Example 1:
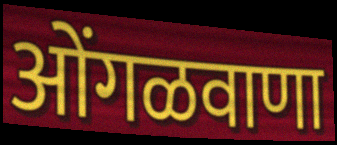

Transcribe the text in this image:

ओंगळवाणा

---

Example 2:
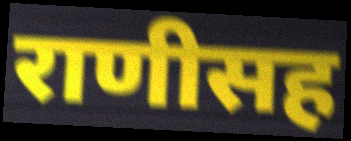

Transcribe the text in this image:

राणीसह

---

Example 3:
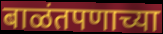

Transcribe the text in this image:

बाळंतपणाच्या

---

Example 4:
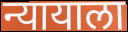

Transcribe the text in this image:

न्यायाला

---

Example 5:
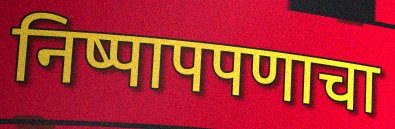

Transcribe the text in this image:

निष्पापपणाचा